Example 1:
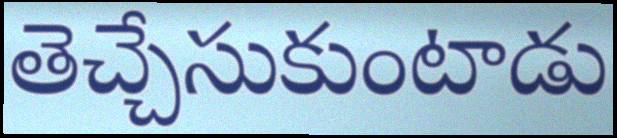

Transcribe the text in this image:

తెచ్చేసుకుంటాడు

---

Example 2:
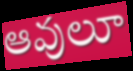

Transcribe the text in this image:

ఆవులూ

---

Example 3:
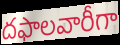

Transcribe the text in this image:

దఫాలవారీగా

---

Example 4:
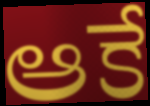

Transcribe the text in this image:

ఆకే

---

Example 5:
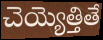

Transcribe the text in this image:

చెయ్యెత్తితే